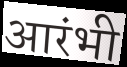
आरंभी